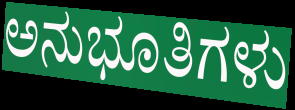
ಅನುಭೂತಿಗಳು